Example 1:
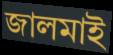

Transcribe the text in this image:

জালমাই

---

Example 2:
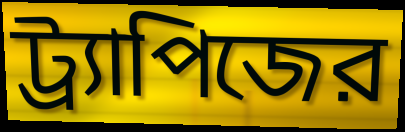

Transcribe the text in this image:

ট্র্যাপিজের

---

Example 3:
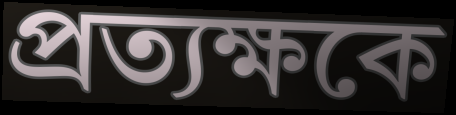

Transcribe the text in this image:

প্রত্যক্ষকে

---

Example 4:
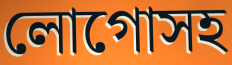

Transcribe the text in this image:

লোগোসহ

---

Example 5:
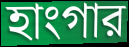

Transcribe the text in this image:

হাংগার